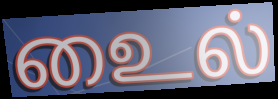
உைல்